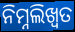
ନିମ୍ନଲିଖ୍ବତ